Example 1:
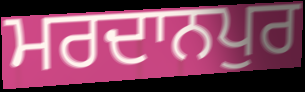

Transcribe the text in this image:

ਮਰਦਾਨਪੁਰ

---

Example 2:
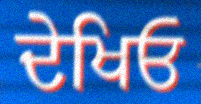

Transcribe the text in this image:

ਦੇਖਿਓ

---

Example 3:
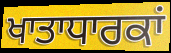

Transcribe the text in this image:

ਖਾਤਾਧਾਰਕਾਂ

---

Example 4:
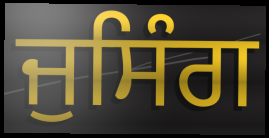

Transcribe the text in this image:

ਜੁਸਿੰਗ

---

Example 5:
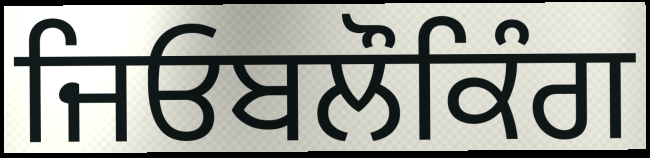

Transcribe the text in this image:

ਜਿਓਬਲੌਕਿੰਗ